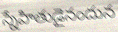
స్నేహితుడైనందున